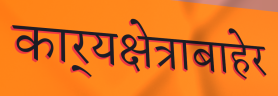
कार्यक्षेत्राबाहेर